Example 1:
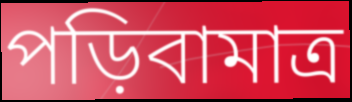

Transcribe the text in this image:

পড়িবামাত্র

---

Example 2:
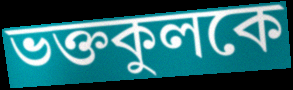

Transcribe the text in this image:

ভক্তকুলকে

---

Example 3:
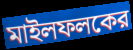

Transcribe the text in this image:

মাইলফলকের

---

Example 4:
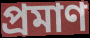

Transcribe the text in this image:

প্রমাণ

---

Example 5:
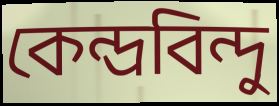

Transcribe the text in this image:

কেন্দ্রবিন্দু